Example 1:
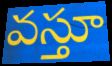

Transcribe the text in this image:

వస్తూ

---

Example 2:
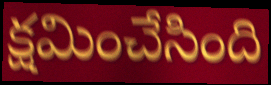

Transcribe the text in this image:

క్షమించేసింది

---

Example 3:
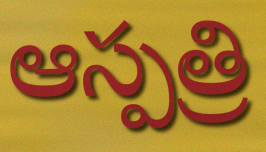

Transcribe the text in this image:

ఆస్పత్రి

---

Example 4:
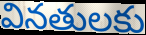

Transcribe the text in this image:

వినతులకు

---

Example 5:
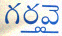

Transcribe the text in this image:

గర్తవై